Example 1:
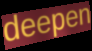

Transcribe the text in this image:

deepen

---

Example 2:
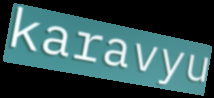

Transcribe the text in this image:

karavyu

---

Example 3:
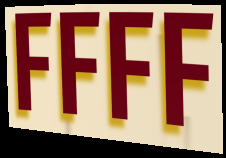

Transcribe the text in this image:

FFFF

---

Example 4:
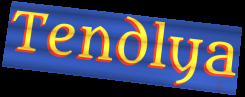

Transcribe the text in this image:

Tendlya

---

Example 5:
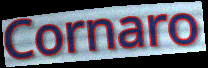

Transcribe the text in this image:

Cornaro